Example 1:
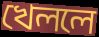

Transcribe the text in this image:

খেললে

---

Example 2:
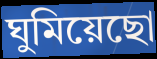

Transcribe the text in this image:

ঘুমিয়েছো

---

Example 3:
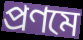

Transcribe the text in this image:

প্রণমে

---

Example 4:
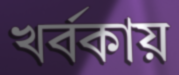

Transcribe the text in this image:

খর্বকায়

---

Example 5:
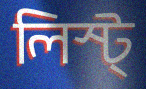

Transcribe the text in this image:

লিস্ট্